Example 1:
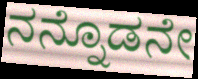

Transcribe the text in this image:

ನನ್ನೊಡನೇ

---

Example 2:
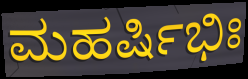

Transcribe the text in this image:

ಮಹರ್ಷಿಭಿಃ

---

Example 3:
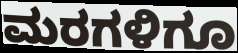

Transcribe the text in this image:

ಮರಗಳಿಗೂ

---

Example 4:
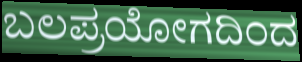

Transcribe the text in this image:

ಬಲಪ್ರಯೋಗದಿಂದ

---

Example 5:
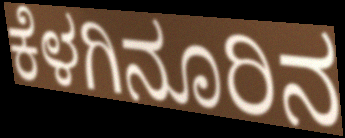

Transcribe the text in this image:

ಕೆಳಗಿನೂರಿನ